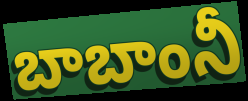
బాబాంనీ